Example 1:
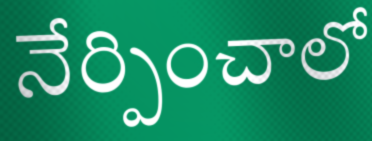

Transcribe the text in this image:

నేర్పించాలో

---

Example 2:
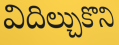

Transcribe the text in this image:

విదిల్చుకొని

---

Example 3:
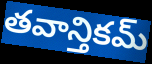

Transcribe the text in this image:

తవాన్తికమ్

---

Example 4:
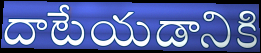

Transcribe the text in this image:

దాటేయడానికి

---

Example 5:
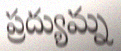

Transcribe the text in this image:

ప్రద్యుమ్న